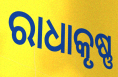
ରାଧାକୃଷ୍ଣ